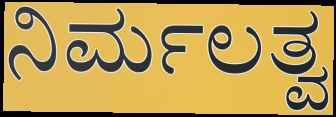
ನಿರ್ಮಲತ್ವ